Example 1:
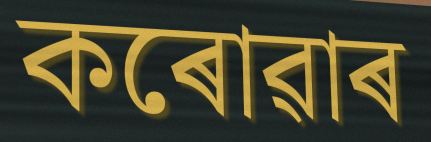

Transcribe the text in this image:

কৰোৱাৰ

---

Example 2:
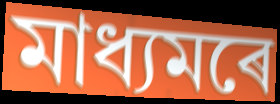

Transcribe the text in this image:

মাধ্যমৰে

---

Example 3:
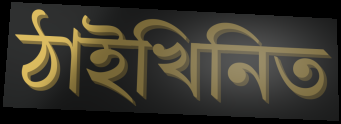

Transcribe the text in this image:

ঠাইখিনিত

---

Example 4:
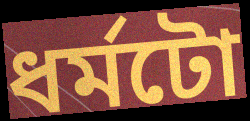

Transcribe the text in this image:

ধৰ্মটো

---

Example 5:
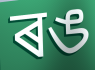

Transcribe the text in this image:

ৰঙ